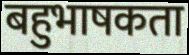
बहुभाषकता